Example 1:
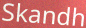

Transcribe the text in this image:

Skandh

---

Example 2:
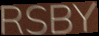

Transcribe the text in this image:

RSBY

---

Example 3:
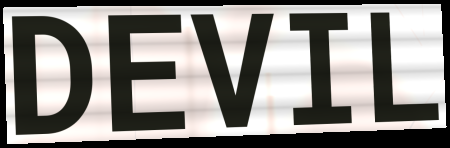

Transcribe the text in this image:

DEVIL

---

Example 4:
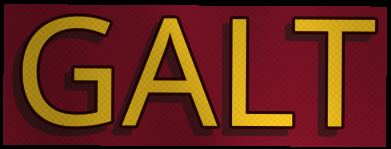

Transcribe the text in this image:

GALT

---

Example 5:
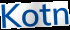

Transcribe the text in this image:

Kotn